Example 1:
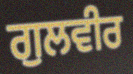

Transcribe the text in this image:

ਗੁਲਵੀਰ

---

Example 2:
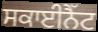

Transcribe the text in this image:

ਸਕਾਈਨੈੱਟ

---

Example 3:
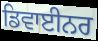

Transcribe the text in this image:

ਡਿਵਾਈਨਰ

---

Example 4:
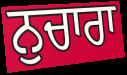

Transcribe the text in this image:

ਨੁਚਾਰਾ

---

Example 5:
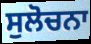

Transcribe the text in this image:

ਸੁਲੋਚਨਾ